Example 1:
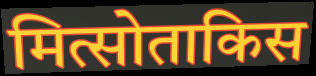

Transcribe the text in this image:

मित्सोताकिस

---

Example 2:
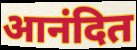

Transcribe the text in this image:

आनंदित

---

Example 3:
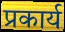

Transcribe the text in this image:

प्रकार्य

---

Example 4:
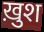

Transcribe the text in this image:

ख़ुश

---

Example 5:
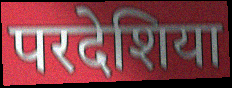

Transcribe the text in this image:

परदेशिया